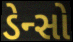
ડેન્સો